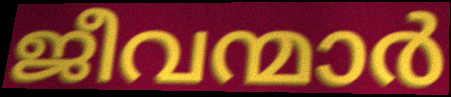
ജീവന്മാർ